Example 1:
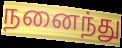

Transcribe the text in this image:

நனைந்து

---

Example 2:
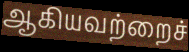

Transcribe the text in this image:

ஆகியவற்றைச்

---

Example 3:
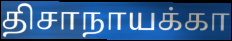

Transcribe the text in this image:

திசாநாயக்கா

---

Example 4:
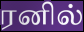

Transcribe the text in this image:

ரனில்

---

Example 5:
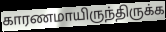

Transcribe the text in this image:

காரணமாயிருந்திருக்க